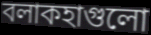
বলাকহাগুলো